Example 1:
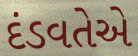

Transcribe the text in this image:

દંડવતેએ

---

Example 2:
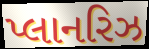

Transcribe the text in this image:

પ્લાનરિઝ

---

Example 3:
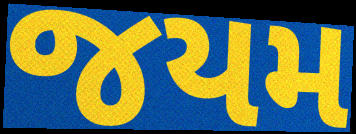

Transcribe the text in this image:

જયમ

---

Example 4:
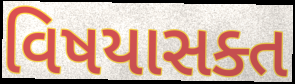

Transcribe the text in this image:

વિષયાસક્ત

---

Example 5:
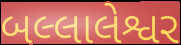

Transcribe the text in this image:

બલ્લાલેશ્વર